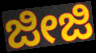
ಜೀಜಿ